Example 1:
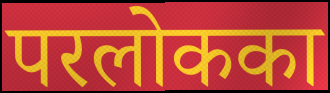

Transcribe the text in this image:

परलोकका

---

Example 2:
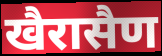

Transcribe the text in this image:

खैरासैण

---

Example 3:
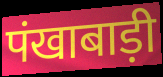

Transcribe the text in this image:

पंखाबाड़ी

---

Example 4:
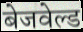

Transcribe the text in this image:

बेजवेल्ड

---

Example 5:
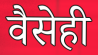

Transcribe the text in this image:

वैसेही